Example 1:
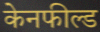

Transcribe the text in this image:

केनफील्ड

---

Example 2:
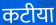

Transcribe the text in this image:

कटीया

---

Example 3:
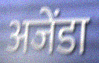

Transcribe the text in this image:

अजेंडा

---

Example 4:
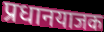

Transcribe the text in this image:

प्रधानयाजक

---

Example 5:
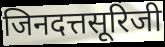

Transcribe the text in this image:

जिनदत्तसूरिजी